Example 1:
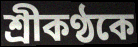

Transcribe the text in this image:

শ্রীকণ্ঠকে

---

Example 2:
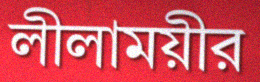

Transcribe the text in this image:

লীলাময়ীর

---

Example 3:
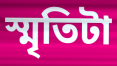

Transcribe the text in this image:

স্মৃতিটা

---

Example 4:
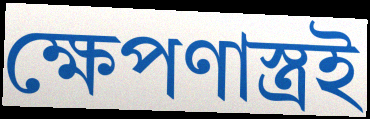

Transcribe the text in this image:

ক্ষেপণাস্ত্রই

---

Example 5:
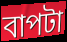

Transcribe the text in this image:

বাপটা